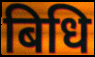
बिधि